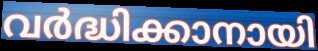
വർദ്ധിക്കാനായി